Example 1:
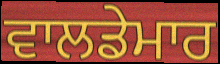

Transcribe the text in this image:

ਵਾਲਡੇਮਾਰ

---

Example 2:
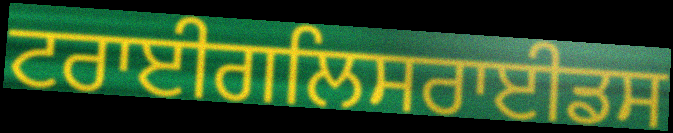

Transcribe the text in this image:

ਟਰਾਈਗਲਿਸਰਾਈਡਸ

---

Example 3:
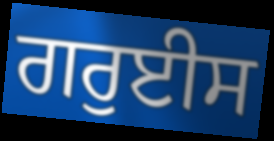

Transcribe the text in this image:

ਗਰੁਈਸ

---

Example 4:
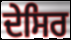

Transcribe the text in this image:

ਦੇਸਿਰ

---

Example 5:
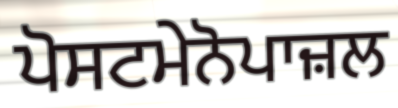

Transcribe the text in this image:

ਪੋਸਟਮੇਨੋਪਾਜ਼ਲ